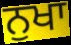
ਨੁਖਾ